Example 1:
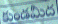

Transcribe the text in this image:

కుండమీద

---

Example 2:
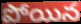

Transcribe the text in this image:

పోయిన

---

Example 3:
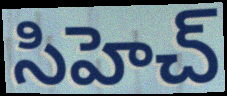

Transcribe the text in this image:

సిహెచ్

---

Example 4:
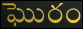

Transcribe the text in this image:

ఘొరం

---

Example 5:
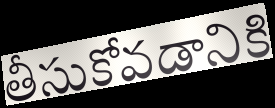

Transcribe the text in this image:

తీసుకోవడానికి